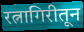
रत्नागिरीतून